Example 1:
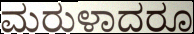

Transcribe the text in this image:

ಮರುಳಾದರೂ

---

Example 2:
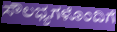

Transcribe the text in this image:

ಸೌಲಭ್ಯಗಳೊಂದಿಗೆ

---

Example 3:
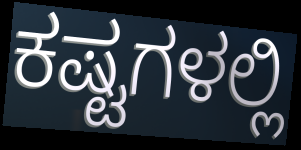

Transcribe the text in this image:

ಕಷ್ಟಗಳಲ್ಲಿ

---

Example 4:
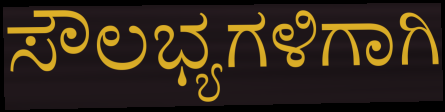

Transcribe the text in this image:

ಸೌಲಭ್ಯಗಳಿಗಾಗಿ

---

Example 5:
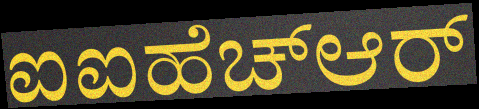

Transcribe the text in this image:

ಐಐಹೆಚ್ಆರ್